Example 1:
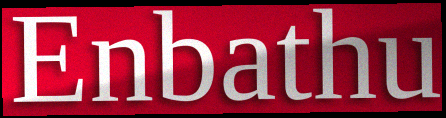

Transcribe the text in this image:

Enbathu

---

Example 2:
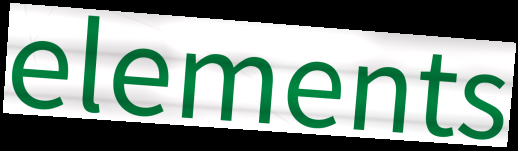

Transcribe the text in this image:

elements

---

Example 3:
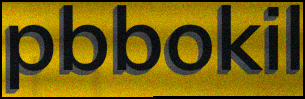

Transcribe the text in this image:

pbbokil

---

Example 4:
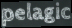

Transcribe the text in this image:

pelagic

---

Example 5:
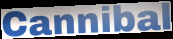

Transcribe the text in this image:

Cannibal